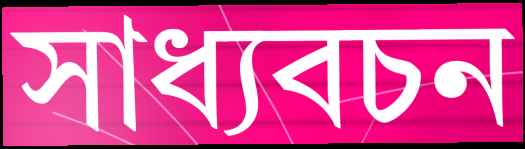
সাধ্যবচন